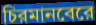
চিরমানবেরে